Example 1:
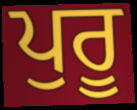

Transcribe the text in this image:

ਪੁਰੂ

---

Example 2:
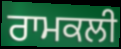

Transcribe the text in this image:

ਰਾਮਕਲੀ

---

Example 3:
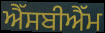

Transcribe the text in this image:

ਐੱਸਬੀਐੱਮ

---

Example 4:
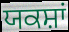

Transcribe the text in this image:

ਯਕਸ਼ਾਂ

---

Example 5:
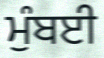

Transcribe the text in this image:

ਮੁੰਬਈ